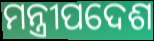
ମନ୍ତ୍ରୀପଦେଶ